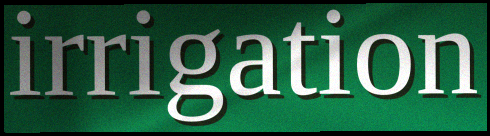
irrigation